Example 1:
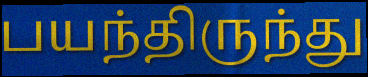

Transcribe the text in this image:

பயந்திருந்து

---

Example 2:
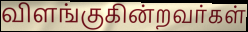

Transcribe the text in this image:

விளங்குகின்றவர்கள்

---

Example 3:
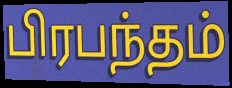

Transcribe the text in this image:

பிரபந்தம்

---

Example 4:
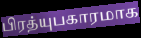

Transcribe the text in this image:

பிரத்யுபகாரமாக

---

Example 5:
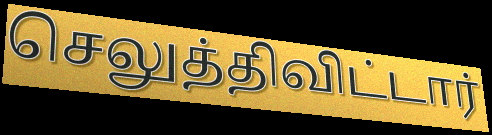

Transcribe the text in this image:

செலுத்திவிட்டார்